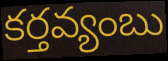
కర్తవ్యంబు